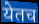
येतच